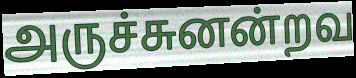
அருச்சுனன்றவ